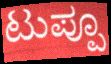
ಟುಪ್ಪೂ